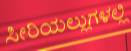
ಸೀರಿಯಲ್ಲುಗಳಲ್ಲಿ